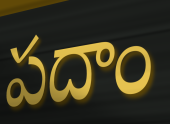
పదాం